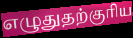
எழுதுதற்குரிய